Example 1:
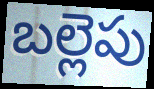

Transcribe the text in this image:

బల్లెపు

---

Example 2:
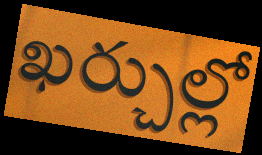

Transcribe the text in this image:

ఖర్చుల్లో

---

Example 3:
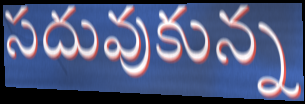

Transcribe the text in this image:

సదువుకున్న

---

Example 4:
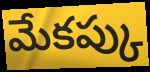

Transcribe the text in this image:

మేకప్కు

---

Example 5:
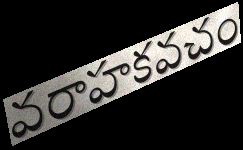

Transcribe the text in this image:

వరాహకవచం